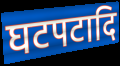
घटपटादि